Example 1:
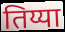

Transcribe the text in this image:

तिय्या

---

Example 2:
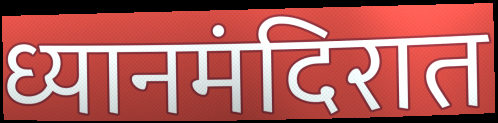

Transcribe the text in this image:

ध्यानमंदिरात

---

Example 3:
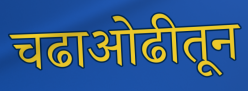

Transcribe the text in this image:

चढाओढीतून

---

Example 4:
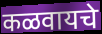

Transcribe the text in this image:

कळवायचे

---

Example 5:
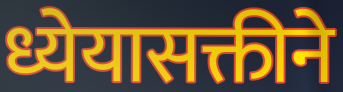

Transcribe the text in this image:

ध्येयासक्तीने